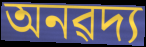
অনৱদ্য